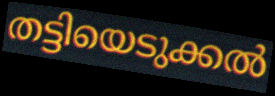
തട്ടിയെടുക്കൽ